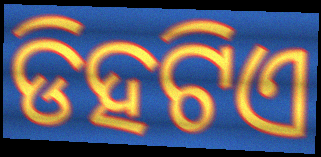
ଡିହଟିଏ